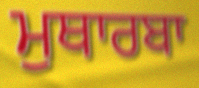
ਮੁਥਾਰਬਾ